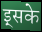
इ्सके